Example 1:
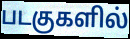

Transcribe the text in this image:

படகுகளில்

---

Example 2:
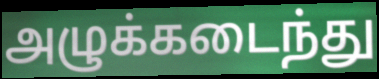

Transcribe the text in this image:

அழுக்கடைந்து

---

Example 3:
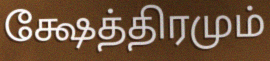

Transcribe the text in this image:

க்ஷேத்திரமும்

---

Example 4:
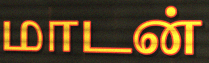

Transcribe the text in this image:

மாடன்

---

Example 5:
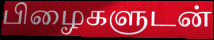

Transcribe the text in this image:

பிழைகளுடன்